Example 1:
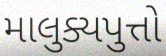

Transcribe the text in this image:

માલુક્યપુત્તો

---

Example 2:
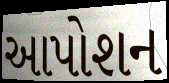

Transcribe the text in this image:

આપોશન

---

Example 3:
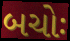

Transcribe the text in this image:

બચોઃ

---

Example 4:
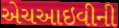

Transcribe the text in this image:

એચઆઇવીની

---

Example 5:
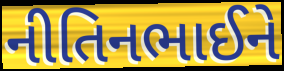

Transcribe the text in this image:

નીતિનભાઈને